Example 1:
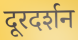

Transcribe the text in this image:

दूरदर्शन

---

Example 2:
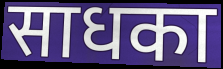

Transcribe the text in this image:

साधका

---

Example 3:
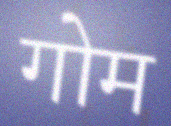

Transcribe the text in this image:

गोम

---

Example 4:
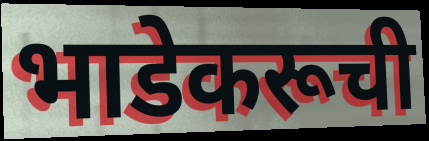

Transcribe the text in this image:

भाडेकरूची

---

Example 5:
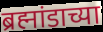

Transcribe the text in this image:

ब्रह्मांडाच्या